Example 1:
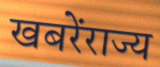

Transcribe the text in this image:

खबरेंराज्य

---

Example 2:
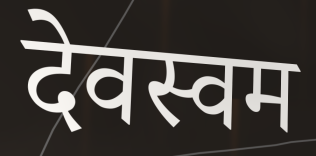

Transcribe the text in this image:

देवस्वम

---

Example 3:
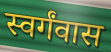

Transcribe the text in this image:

स्वर्गंवास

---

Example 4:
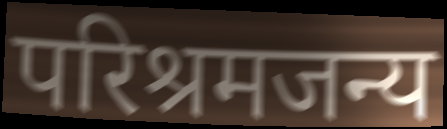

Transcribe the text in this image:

परिश्रमजन्य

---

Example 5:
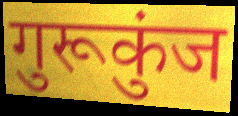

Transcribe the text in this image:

गुरूकुंज